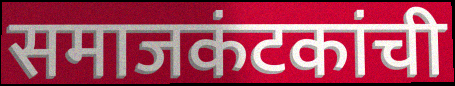
समाजकंटकांची